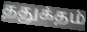
ததுக்தம்